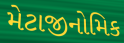
મેટાજીનોમિક